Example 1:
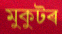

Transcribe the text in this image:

মুকুটৰ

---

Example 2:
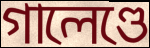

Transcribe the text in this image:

গালেণ্ডে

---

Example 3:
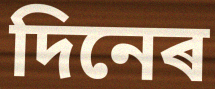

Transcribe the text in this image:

দিনেৰ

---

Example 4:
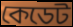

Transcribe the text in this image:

কেডেট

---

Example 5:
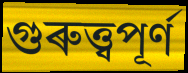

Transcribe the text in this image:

গুৰুত্ত্বপূৰ্ণ